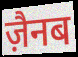
ज़ैनब